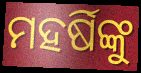
ମହର୍ଷିଙ୍କୁ